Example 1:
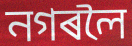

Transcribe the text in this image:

নগৰলৈ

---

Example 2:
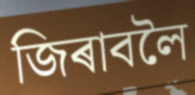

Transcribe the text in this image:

জিৰাবলৈ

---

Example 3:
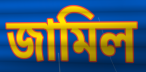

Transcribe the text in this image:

জামিল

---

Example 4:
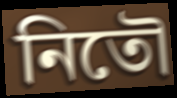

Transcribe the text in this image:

নিতৌ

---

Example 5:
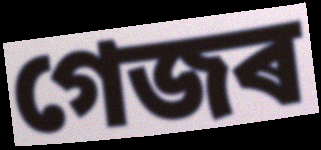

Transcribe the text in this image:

গেজৰ